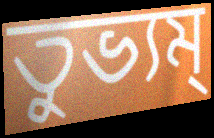
তুভ্যম্